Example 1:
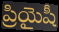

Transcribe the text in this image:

ప్రియైషీ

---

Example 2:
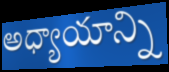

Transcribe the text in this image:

అధ్యాయాన్ని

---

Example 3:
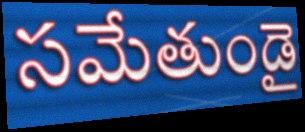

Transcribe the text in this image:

సమేతుండై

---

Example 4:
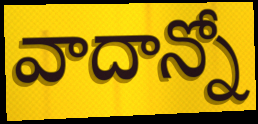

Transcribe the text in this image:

వాదాన్నో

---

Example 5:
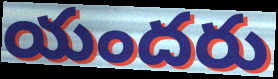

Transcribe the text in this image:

యందరు